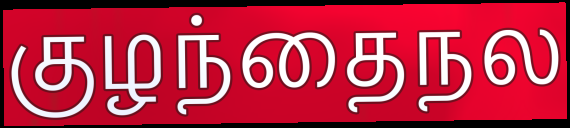
குழந்தைநல